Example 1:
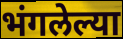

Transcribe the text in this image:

भंगलेल्या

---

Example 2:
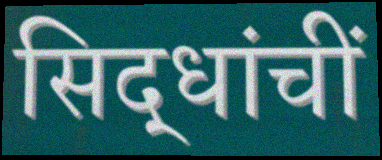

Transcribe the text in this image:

सिद्धांचीं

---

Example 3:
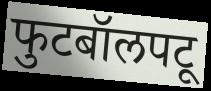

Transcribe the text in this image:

फुटबॉलपटू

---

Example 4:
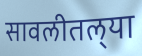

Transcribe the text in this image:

सावलीतल्या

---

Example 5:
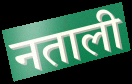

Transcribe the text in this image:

नताली